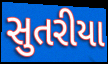
સુતરીયા